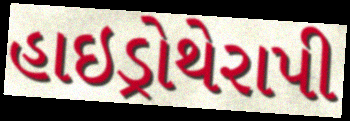
હાઇડ્રોથેરાપી